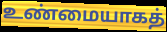
உண்மையாகத்